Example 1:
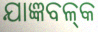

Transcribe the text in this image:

ଯାଜ୍ଞବଳ୍‌କ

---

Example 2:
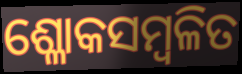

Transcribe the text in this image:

ଶ୍ଳୋକସମ୍ବଳିତ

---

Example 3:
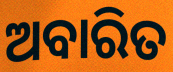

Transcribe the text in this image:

ଅବାରିତ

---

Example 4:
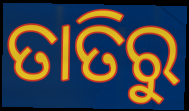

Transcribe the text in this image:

ତାତିରୁ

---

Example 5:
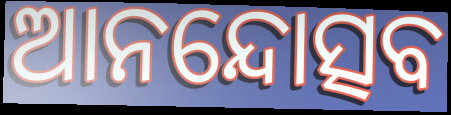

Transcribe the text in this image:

ଆନନ୍ଦୋତ୍ସବ